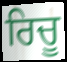
ਰਿਚੂ